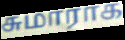
சுமாராக